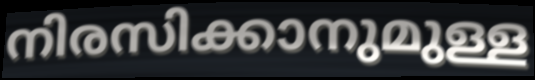
നിരസിക്കാനുമുള്ള